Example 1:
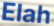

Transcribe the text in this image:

Elah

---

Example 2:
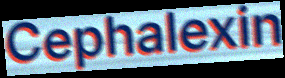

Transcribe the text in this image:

Cephalexin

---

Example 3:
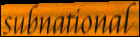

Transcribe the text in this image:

subnational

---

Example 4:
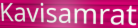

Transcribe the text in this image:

Kavisamrat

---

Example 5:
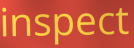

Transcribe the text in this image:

inspect